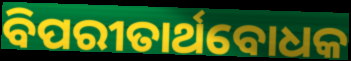
ବିପରୀତାର୍ଥବୋଧକ